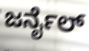
ಜರ್ನೈಲ್